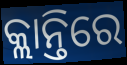
କ୍ଲାନ୍ତିରେ